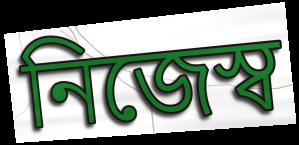
নিজেস্ব